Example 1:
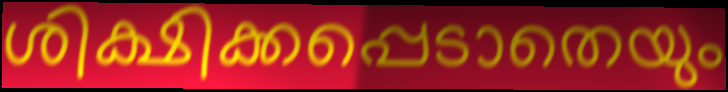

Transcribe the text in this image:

ശിക്ഷിക്കപ്പെടാതെയും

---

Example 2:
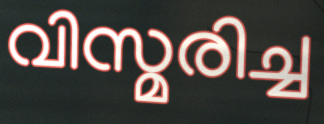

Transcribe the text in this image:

വിസ്മരിച്ച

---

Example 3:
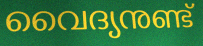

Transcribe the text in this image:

വൈദ്യനുണ്ട്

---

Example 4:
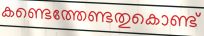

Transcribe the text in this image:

കണ്ടെത്തേണ്ടതുകൊണ്ട്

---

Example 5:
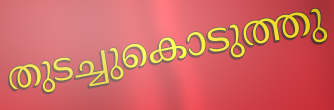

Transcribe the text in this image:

തുടച്ചുകൊടുത്തു